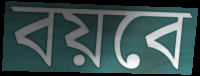
বয়বে